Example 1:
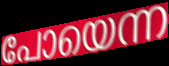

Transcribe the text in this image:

പോയെന്ന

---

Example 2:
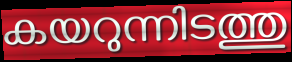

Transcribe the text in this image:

കയറുന്നിടത്തു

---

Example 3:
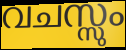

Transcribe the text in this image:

വചസ്സും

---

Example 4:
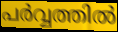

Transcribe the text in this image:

പർവ്വത്തിൽ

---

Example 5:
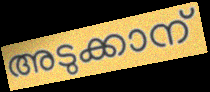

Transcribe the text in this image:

അടുക്കാന്